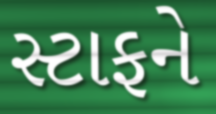
સ્ટાફને